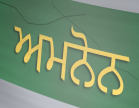
ਅਮਨੋਨ